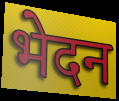
भेदन